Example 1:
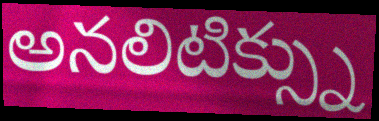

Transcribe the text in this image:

అనలిటిక్స్ను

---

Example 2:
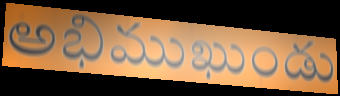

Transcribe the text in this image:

అభిముఖుండు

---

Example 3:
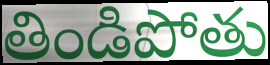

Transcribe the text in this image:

తిండిపోతు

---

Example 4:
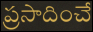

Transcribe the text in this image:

ప్రసాదించే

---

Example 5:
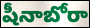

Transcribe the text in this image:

షీనాబోరా